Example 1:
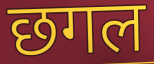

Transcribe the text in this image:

छगल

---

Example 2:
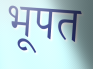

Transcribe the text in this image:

भूपत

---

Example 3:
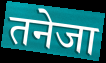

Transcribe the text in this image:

तनेजा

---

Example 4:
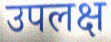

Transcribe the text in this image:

उपलक्ष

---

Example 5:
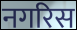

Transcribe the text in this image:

नगरिस